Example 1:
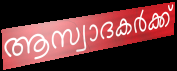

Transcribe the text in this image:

ആസ്വാദകർക്ക്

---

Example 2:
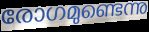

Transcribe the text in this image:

രോഗമുണ്ടെന്നു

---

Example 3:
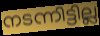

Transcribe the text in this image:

നടന്നിട്ടില്ല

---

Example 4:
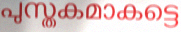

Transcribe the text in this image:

പുസ്തകമാകട്ടെ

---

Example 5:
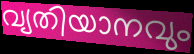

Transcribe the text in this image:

വ്യതിയാനവും